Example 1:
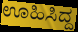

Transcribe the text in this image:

ಊಹಿಸಿದ್ದ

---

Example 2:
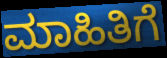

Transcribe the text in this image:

ಮಾಹಿತಿಗೆ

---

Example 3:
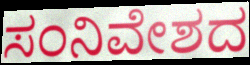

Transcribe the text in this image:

ಸಂನಿವೇಶದ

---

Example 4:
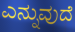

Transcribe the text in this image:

ಎನ್ನುವುದೆ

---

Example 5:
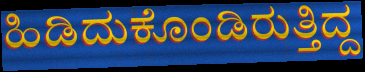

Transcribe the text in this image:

ಹಿಡಿದುಕೊಂಡಿರುತ್ತಿದ್ದ